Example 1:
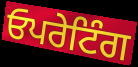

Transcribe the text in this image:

ਓਪਰੇਟਿੰਗ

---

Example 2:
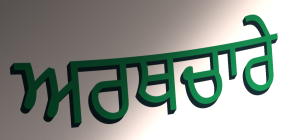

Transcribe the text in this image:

ਅਰਥਚਾਰੇ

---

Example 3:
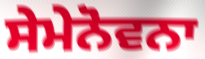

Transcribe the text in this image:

ਸੇਮੇਨੋਵਨਾ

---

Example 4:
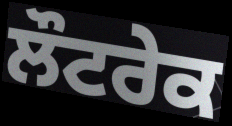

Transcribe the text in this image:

ਲੌਟਰੇਕ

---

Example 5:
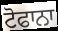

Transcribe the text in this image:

ਟੋਫਾਨਾ